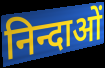
निन्दाओं